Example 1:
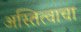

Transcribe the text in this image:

अस्तित्वाचा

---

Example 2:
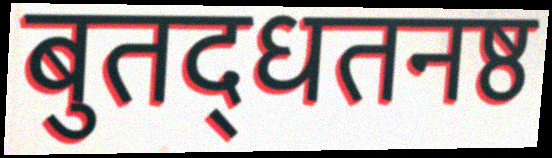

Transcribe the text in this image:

बुतद्धतनष्ठ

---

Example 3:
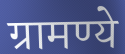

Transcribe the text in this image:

ग्रामण्ये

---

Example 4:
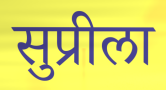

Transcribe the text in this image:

सुप्रीला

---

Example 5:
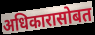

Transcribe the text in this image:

अधिकारासोबत